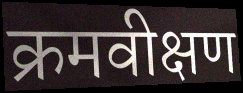
क्रमवीक्षण